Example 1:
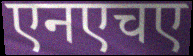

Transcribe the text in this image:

एनएचए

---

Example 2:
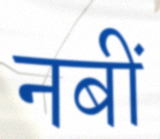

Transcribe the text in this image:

नबीं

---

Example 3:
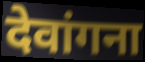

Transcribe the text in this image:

देवांगना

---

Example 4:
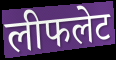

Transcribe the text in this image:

लीफलेट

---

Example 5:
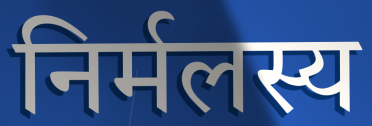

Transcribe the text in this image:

निर्मलस्य